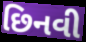
છિનવી